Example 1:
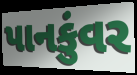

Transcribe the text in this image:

પાનકુંવર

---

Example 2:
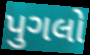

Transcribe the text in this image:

પુગલો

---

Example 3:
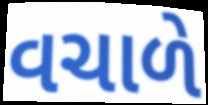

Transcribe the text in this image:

વચાળે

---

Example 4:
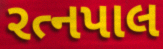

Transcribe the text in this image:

રત્નપાલ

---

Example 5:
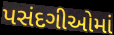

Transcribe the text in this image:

પસંદગીઓમાં